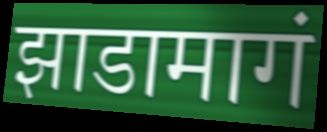
झाडामागं